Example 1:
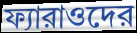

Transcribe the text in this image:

ফ্যারাওদের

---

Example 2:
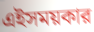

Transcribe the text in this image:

এইসময়কার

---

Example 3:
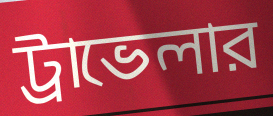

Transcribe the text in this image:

ট্রাভেলার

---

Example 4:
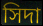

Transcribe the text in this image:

সিদা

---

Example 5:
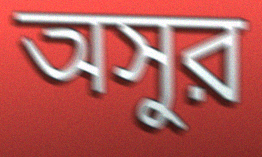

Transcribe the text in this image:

অসুর